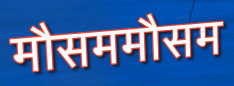
मौसममौसम